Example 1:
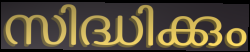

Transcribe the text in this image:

സിദ്ധിക്കും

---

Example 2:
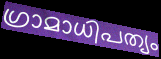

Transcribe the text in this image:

ഗ്രാമാധിപത്യം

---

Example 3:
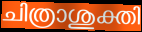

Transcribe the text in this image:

ചിത്രാശുക്തി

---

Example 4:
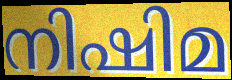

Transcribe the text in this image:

നിഷിമ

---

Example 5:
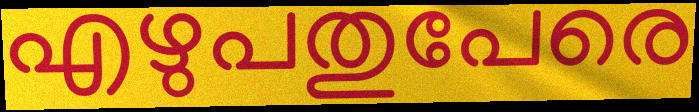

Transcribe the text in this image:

എഴുപതുപേരെ